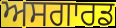
ਅਸਗਾਰਡ